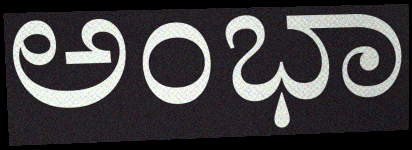
ಅಂಭಾ